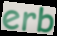
erb